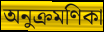
অনুক্রমণিকা